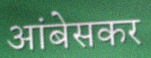
आंबेसकर